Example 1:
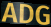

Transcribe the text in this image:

ADG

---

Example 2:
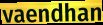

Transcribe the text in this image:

vaendhan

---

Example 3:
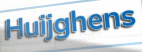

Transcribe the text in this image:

Huijghens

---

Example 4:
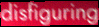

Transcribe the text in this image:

disfiguring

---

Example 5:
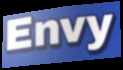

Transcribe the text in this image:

Envy